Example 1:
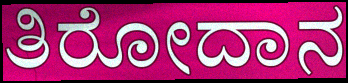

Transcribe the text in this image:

ತಿರೋದಾನ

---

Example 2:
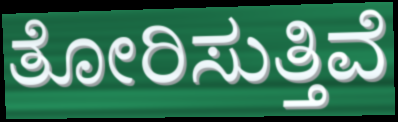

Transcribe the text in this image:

ತೋರಿಸುತ್ತಿವೆ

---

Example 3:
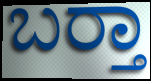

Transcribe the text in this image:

ಬರ‍್ತಾ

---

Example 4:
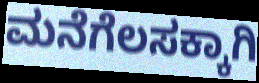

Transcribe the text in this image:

ಮನೆಗೆಲಸಕ್ಕಾಗಿ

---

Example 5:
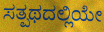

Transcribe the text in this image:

ಸತ್ಪಥದಲ್ಲಿಯೇ